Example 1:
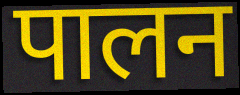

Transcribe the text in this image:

पालन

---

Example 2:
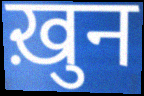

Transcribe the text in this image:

ख़ुन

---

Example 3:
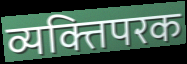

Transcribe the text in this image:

व्यक्तिपरक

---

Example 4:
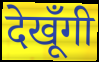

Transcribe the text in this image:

देखूँगी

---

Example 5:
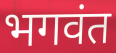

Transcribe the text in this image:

भगवंत